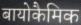
बायोकैमिक